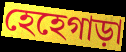
হেহেগাড়া